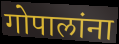
गोपालांना